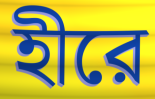
হীরে